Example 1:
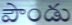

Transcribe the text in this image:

పౌండు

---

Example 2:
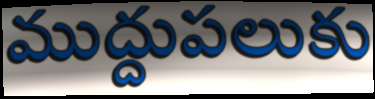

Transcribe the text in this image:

ముద్దుపలుకు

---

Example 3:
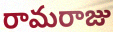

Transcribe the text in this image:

రామరాజు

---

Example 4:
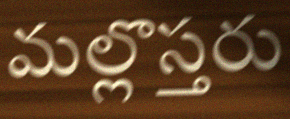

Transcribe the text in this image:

మల్లొస్తరు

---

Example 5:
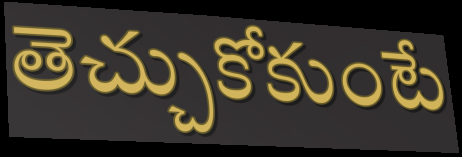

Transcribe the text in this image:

తెచ్చుకోకుంటే